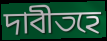
দাবীতহে